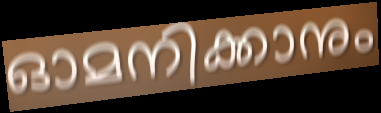
ഓമനിക്കാനും